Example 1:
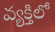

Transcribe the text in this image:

వ్యక్తిలో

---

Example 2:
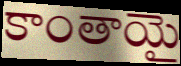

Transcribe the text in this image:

కాంతాయై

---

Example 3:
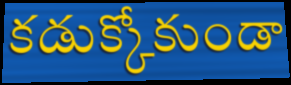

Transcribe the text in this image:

కడుక్కోకుండా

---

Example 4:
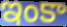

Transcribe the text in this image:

ఇంకా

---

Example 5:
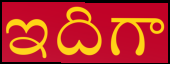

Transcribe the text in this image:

ఇదిగా